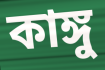
কাঙ্গু